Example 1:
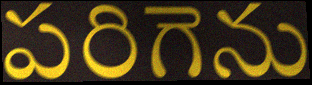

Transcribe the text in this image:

పరిగెను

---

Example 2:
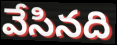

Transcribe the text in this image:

వేసినది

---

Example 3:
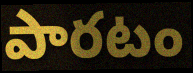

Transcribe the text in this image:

పారటం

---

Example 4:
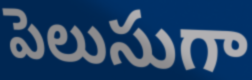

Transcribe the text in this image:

పెలుసుగా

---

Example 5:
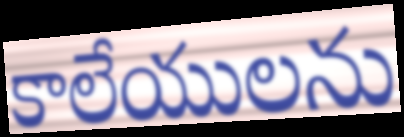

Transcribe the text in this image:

కాలేయులను